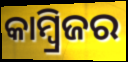
କାମ୍ବ୍ରିଜର